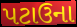
પટાઉના